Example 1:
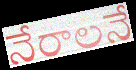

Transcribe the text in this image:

నేరాలనే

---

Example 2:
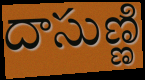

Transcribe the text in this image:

దాసుణ్ణి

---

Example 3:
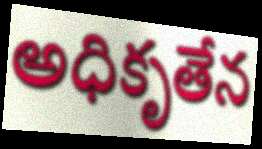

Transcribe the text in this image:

అధికృతేన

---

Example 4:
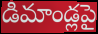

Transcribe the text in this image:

డిమాండ్లపై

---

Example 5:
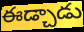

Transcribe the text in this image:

ఈడ్చాడు